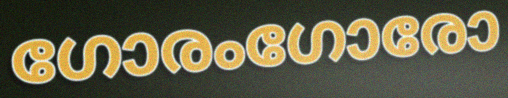
ഗോരംഗോരോ